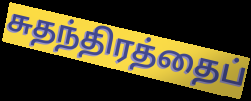
சுதந்திரத்தைப்